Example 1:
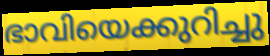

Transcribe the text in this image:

ഭാവിയെക്കുറിച്ചു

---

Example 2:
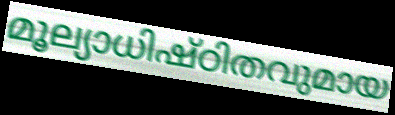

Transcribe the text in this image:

മൂല്യാധിഷ്ഠിതവുമായ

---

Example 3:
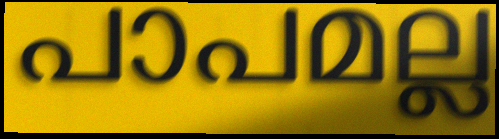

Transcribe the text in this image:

പാപമല്ല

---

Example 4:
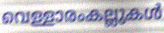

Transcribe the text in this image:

വെള്ളാരംകല്ലുകൾ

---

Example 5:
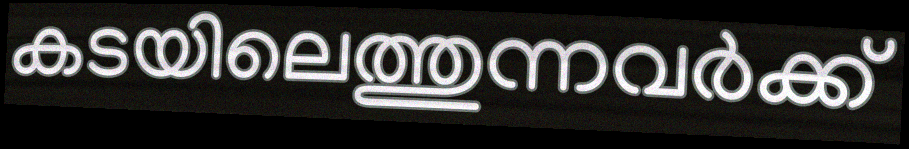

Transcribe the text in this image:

കടയിലെത്തുന്നവർക്ക്